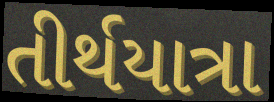
તીર્થયાત્રા